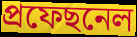
প্ৰফেছনেল